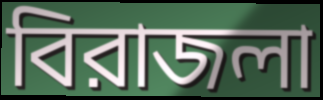
বিরাজলা